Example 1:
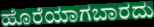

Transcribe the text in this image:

ಹೊರೆಯಾಗಬಾರದು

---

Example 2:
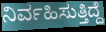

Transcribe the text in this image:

ನಿರ್ವಹಿಸುತ್ತಿದ್ದೆ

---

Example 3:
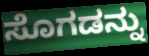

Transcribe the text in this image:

ಸೊಗಡನ್ನು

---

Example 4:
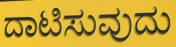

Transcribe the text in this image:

ದಾಟಿಸುವುದು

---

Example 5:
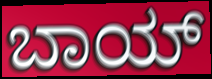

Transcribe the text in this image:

ಬಾಯ್